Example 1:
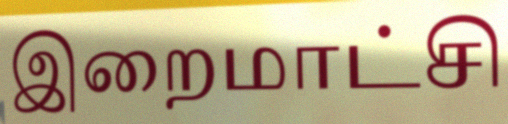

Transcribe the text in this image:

இறைமாட்சி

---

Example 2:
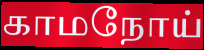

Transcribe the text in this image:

காமநோய்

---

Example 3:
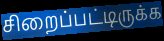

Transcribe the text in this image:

சிறைப்பட்டிருக்க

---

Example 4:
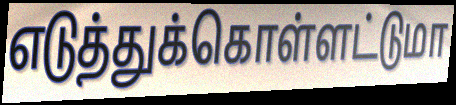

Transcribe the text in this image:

எடுத்துக்கொள்ளட்டுமா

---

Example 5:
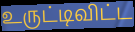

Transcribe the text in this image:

உருட்டிவிட்ட